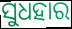
ସୁଧହାର